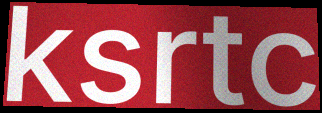
ksrtc